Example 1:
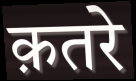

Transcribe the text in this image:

क़तरे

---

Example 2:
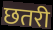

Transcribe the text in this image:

छतरी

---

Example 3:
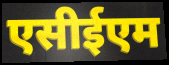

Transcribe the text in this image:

एसीईएम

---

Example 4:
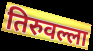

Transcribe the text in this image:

तिरुवल्ला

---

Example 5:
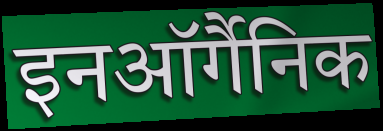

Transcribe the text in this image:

इनऑर्गैनिक